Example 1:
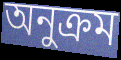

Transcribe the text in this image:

অনুক্রম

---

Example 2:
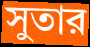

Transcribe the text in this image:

সুতার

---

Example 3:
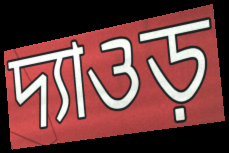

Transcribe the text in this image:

দ্যাওড়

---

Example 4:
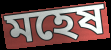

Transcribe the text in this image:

মহেষ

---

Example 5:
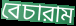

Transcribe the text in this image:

বেচারাম